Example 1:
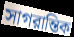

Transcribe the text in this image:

সাগরান্তিক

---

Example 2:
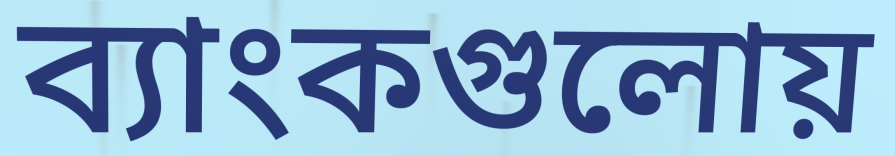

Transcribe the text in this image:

ব্যাংকগুলোয়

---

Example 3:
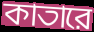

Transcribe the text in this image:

কাতারে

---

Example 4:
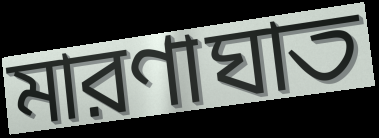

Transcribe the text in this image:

মারণাঘাত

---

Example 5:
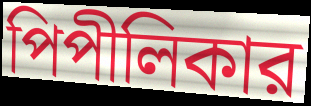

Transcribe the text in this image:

পিপীলিকার